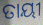
ତାୟୀ